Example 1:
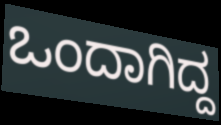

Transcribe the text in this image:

ಒಂದಾಗಿದ್ದ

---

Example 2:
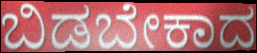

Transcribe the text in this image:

ಬಿಡಬೇಕಾದ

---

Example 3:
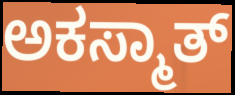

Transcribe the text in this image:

ಅಕಸ್ಮಾತ್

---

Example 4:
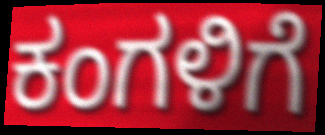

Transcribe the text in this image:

ಕಂಗಳಿಗೆ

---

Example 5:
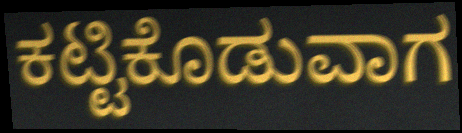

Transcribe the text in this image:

ಕಟ್ಟಿಕೊಡುವಾಗ